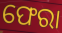
ଫେରା